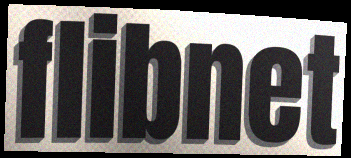
flibnet